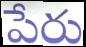
పేరు